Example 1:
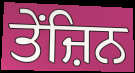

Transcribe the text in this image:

ਤੇਂਜ਼ਿਨ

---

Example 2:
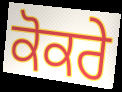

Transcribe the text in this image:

ਕੋਕਰੇ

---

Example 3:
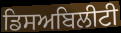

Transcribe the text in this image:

ਡਿਸਅਬਿਲੀਟੀ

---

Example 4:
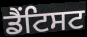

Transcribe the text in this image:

ਡੈਂਟਿਸਟ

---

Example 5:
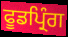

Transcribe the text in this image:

ਫੂਡਪ੍ਰਿੰਗ